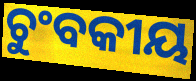
ଚୁଂବକୀୟ